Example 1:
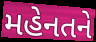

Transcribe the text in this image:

મહેનતને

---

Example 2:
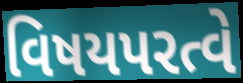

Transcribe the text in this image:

વિષયપરત્વે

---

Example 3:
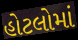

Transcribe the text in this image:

હોટલોમાં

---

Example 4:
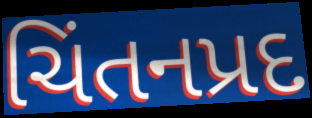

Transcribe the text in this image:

ચિંતનપ્રદ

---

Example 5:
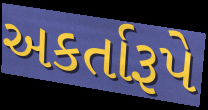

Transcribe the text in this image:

અકર્તારૂપે